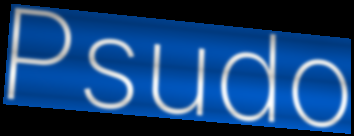
Psudo